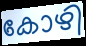
കോഴി